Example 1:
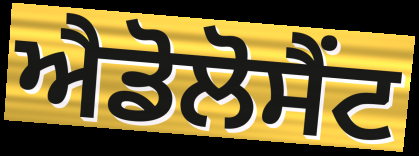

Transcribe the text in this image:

ਐਡੋਲੋਸੈਂਟ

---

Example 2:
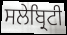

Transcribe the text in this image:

ਸਲੇਬ੍ਰਿਟੀ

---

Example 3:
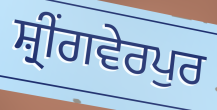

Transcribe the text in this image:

ਸ਼੍ਰੀਂਗਵੇਰਪੁਰ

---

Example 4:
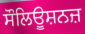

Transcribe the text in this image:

ਸੌਲਿਊਸ਼ਨਜ਼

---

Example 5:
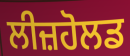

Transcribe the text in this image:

ਲੀਜ਼ਹੋਲਡ